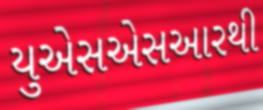
યુએસએસઆરથી